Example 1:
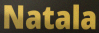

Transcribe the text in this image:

Natala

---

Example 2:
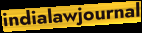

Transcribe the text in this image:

indialawjournal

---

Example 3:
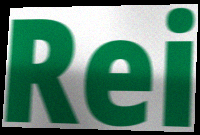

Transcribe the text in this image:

Rei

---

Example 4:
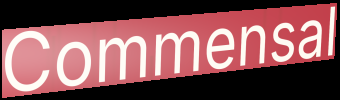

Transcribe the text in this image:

Commensal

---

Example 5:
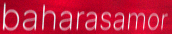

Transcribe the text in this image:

baharasamor